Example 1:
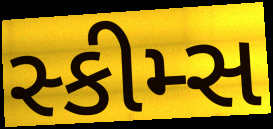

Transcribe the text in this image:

સ્કીમ્સ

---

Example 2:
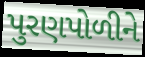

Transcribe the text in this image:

પુરણપોળીને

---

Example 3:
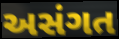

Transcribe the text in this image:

અસંગત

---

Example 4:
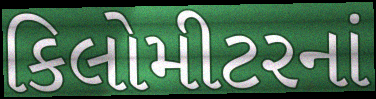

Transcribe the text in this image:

કિલોમીટરનાં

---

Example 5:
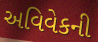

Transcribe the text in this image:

અવિવેકની